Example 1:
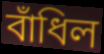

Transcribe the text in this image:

বাঁধিল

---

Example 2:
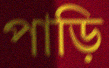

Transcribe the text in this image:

পাড়ি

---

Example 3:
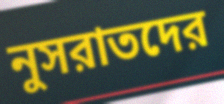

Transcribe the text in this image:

নুসরাতদের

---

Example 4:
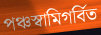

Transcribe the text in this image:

পঞ্চস্বামিগর্বিত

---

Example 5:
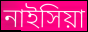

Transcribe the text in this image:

নাইসিয়া